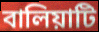
বালিয়াটি